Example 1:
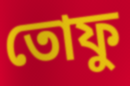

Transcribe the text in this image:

তোফু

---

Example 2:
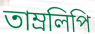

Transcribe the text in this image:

তাম্রলিপি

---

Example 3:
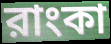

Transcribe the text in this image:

রাংকা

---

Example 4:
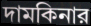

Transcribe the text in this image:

দামকিনার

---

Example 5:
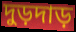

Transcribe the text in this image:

দুড়দাড়